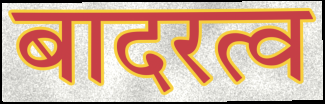
बादरत्व